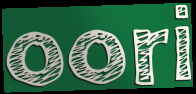
oori